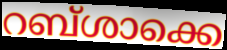
റബ്ശാക്കെ